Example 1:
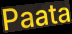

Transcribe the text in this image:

Paata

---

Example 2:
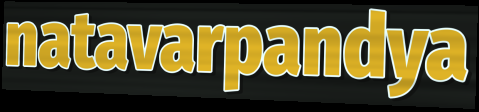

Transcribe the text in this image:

natavarpandya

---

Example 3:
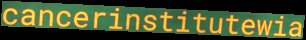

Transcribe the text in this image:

cancerinstitutewia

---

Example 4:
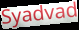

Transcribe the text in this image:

Syadvad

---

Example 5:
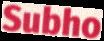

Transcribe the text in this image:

Subho